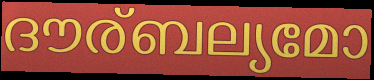
ദൗര്ബല്യമോ